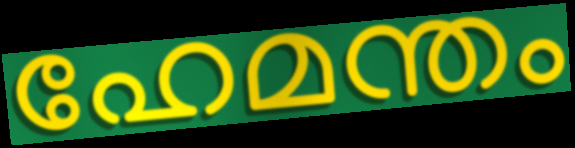
ഹേമന്തം